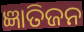
ଜ୍ଞାତିଜନ